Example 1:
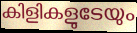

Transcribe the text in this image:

കിളികളുടേയും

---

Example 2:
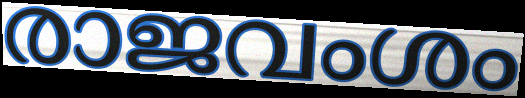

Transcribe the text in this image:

രാജവംശം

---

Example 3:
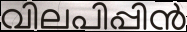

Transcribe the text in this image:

വിലപിപ്പിൻ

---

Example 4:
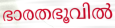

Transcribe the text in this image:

ഭാരതഭൂവിൽ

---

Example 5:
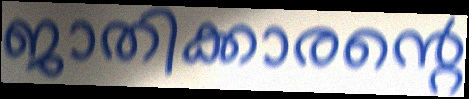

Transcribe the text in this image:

ജാതിക്കാരന്റെ